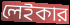
লেইকার